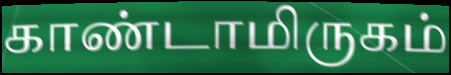
காண்டாமிருகம்